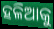
ହଳିଆକୁ